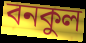
বনকুল